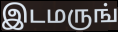
இடமருங்